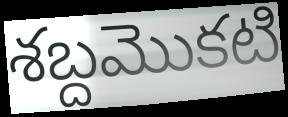
శబ్దమొకటి